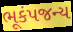
ભૂકંપજન્ય